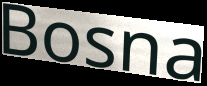
Bosna